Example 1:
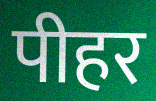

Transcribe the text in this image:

पीहर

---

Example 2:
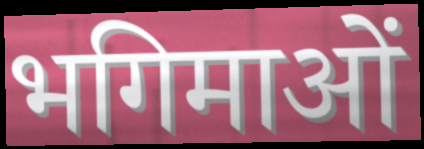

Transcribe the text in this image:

भगिमाओं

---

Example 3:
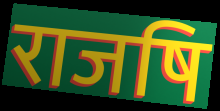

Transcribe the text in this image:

राजषि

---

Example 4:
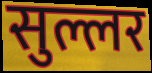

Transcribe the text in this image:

सुल्लर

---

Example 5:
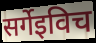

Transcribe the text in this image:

सर्गेइविच